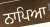
ਨਾਪਿਆ